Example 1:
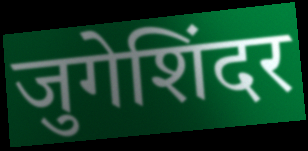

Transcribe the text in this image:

जुगेशिंदर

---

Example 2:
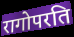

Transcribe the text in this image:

रागोपरति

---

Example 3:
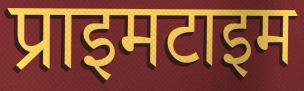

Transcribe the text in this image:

प्राइमटाइम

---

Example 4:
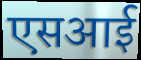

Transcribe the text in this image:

एसआई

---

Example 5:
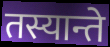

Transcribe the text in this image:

तस्यान्ते